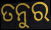
ତନୁର